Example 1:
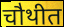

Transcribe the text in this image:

चौथीत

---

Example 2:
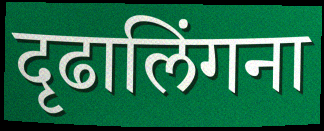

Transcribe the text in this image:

दृढालिंगना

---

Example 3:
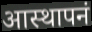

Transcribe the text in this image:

आस्थापनं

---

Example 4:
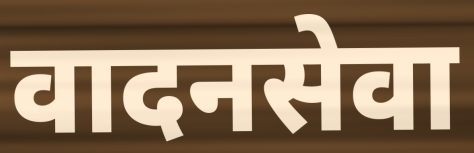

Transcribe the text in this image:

वादनसेवा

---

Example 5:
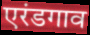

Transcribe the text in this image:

एरंडगाव